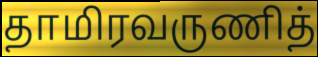
தாமிரவருணித்